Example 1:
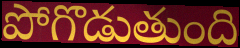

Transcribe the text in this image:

పోగొడుతుంది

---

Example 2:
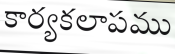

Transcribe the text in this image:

కార్యకలాపము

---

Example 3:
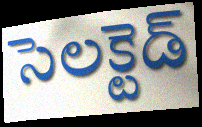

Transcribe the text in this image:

సెలక్టెడ్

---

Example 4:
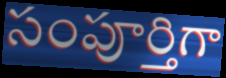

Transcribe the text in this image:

సంపూర్తిగా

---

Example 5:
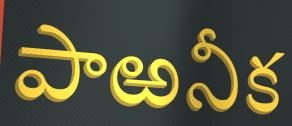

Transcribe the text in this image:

పాఱనీక